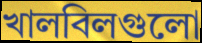
খালবিলগুলো